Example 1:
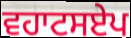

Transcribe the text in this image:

ਵਹਾਟਸਏਪ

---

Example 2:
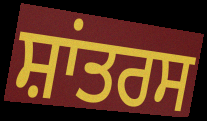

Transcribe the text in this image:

ਸ਼ਾਂਤਰਸ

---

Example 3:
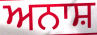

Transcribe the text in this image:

ਅਨਾਸ਼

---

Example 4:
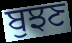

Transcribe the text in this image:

ਬੁਝਣ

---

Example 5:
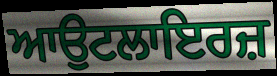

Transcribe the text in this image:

ਆਉਟਲਾਇਰਜ਼